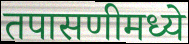
तपासणीमध्ये